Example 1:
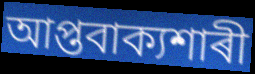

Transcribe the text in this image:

আপ্তবাক্যশাৰী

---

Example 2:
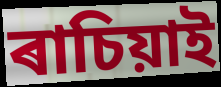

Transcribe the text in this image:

ৰাচিয়াই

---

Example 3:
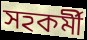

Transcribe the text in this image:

সহকৰ্মী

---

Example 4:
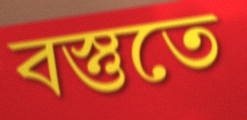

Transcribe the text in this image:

বস্তুতে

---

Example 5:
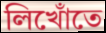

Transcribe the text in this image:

লিখোঁতে